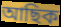
আছিক